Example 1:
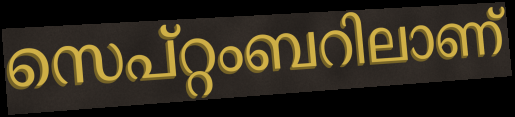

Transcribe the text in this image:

സെപ്റ്റംബറിലാണ്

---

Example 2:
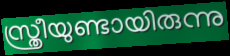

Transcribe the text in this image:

സ്ത്രീയുണ്ടായിരുന്നു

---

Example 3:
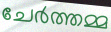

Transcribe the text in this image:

ചേർത്തമ്മ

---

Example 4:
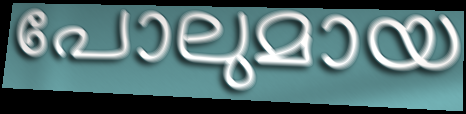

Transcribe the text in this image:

പോലുമായ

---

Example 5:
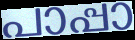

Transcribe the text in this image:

പാപ്പാ